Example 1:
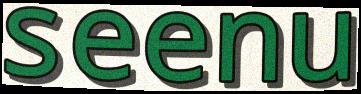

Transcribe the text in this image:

seenu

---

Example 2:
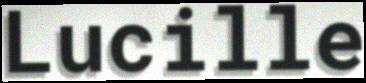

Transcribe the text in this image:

Lucille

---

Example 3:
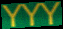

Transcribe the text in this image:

YYY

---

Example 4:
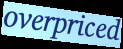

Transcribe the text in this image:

overpriced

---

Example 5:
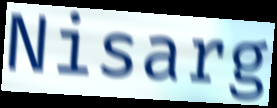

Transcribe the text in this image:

Nisarg